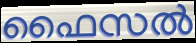
ഫൈസൽ